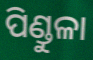
ପିଣ୍ଡୁଳା